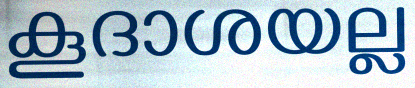
കൂദാശയല്ല